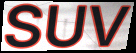
SUV